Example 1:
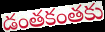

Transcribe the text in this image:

డంతకంతకు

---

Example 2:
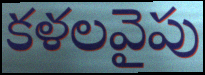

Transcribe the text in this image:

కళలవైపు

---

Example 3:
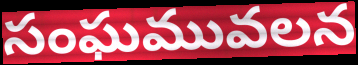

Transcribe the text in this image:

సంఘమువలన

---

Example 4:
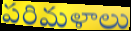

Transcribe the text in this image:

పరిమళాలు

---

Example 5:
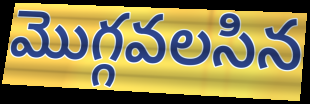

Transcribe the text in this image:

మొగ్గవలసిన